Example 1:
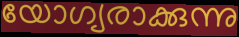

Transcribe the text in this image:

യോഗ്യരാക്കുന്നു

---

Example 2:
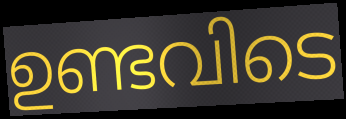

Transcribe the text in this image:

ഉണ്ടവിടെ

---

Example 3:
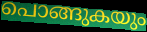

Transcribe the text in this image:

പൊങ്ങുകയും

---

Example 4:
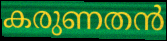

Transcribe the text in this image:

കരുണതൻ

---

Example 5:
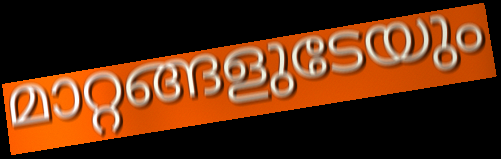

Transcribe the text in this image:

മാറ്റങ്ങളുടേയും